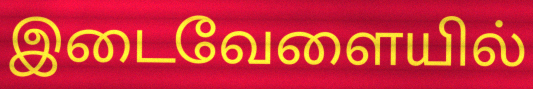
இடைவேளையில்